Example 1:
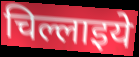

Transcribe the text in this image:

चिल्लाइये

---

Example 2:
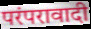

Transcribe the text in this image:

परंपरावादी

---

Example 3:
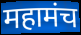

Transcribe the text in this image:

महामंच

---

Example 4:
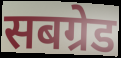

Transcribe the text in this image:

सबग्रेड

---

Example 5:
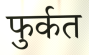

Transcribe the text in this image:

फुर्कत